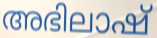
അഭിലാഷ്